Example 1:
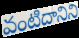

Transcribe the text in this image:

వంటిదానిని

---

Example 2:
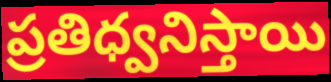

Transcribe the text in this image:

ప్రతిధ్వనిస్తాయి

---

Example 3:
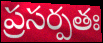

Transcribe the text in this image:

ప్రసర్పతః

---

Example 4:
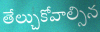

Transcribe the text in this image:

తేల్చుకోవాల్సిన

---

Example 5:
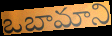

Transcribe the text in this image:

ఒబామాని